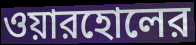
ওয়ারহোলের